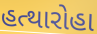
હત્થારોહા